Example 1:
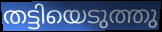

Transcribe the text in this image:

തട്ടിയെടുത്തു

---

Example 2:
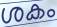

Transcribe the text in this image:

ശകം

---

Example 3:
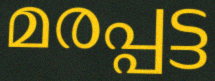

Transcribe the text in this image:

മരപ്പട്ട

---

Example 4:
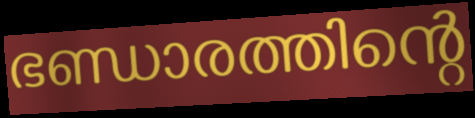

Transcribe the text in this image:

ഭണ്ഡാരത്തിന്റെ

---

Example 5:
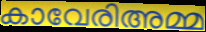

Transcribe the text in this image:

കാവേരിഅമ്മ